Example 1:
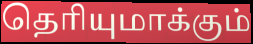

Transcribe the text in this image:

தெரியுமாக்கும்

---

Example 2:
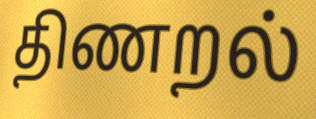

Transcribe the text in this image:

திணறல்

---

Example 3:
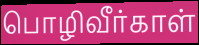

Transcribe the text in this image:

பொழிவீர்காள்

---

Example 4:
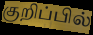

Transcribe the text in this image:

குறிப்பில்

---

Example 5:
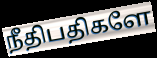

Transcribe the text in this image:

நீதிபதிகளே